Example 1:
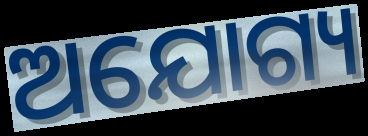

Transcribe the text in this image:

ଅଯୋଗ୍ୟ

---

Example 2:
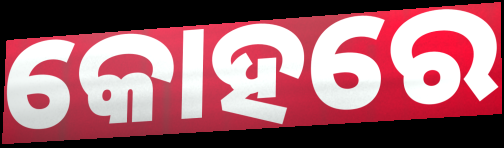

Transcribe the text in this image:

କୋହରେ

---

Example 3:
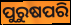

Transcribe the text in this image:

ପୁରୁଷପରି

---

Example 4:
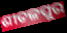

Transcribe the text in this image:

ଶୀତଳପୁର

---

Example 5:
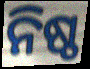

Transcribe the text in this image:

ନିଷ୍ଠ